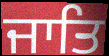
ਜਾਤਿ